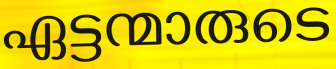
ഏട്ടന്മാരുടെ